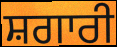
ਸ਼ਗਾਰੀ